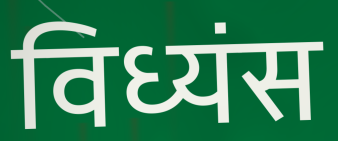
विध्यंस